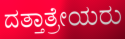
ದತ್ತಾತ್ರೇಯರು